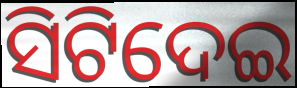
ସିଟିଦେଇ